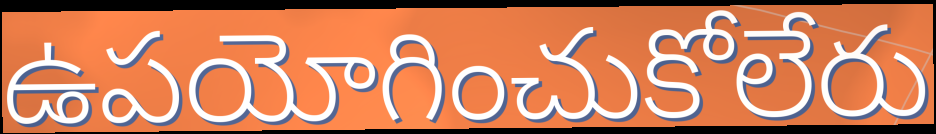
ఉపయోగించుకోలేరు